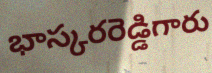
భాస్కరరెడ్డిగారు